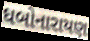
ધબોનારાયણ